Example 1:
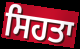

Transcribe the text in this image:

ਸਿਹਤਾ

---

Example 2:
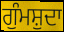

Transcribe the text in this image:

ਗੁੰਮਸ਼ੁਦਾ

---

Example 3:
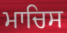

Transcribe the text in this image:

ਮਾਚਿਸ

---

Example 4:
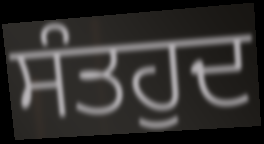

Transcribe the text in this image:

ਸੰਤਹੁਦ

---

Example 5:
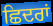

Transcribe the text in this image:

ਛਿਦਰਾਂ